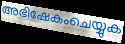
അഭിഷേകംചെയ്യുക